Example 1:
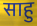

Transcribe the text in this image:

साहु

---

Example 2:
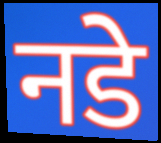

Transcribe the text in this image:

नडे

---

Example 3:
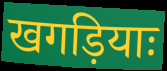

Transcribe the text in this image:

खगड़ियाः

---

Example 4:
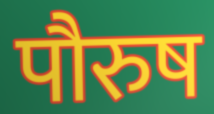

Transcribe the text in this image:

पौरुष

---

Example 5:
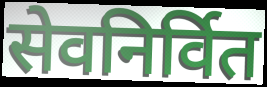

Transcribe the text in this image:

सेवनिर्वित